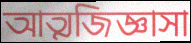
আত্মজিজ্ঞাসা